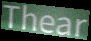
Thear